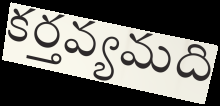
కర్తవ్యమది